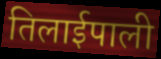
तिलाईपाली